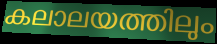
കലാലയത്തിലും